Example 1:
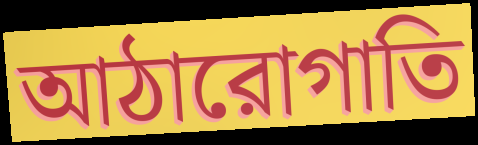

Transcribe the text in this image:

আঠারোগাতি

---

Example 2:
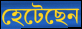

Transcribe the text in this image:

হেটেছেন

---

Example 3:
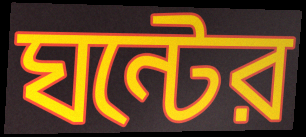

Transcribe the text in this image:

ঘন্টের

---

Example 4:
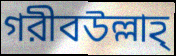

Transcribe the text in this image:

গরীবউল্লাহ্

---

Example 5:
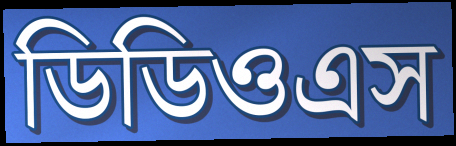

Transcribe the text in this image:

ডিডিওএস